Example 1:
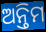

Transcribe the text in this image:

ଅନ୍ତିମ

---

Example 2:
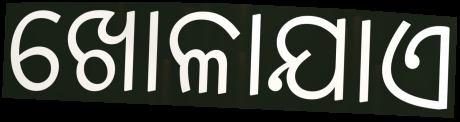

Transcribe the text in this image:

ଖୋଳାଯାଏ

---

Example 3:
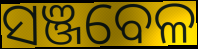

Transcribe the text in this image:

ସଞ୍ଜବେଳ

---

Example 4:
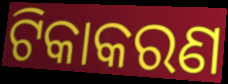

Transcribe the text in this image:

ଟିକାକରଣ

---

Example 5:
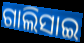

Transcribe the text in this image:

ଗାଲିସାଇ